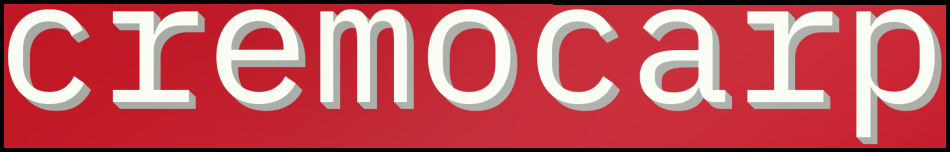
cremocarp